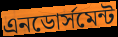
এনডোর্সমেন্ট